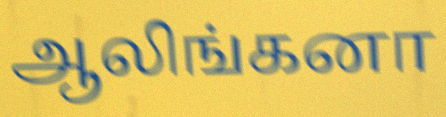
ஆலிங்கனா